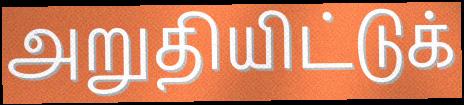
அறுதியிட்டுக்